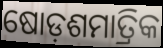
ଷୋଡ଼ଶମାତ୍ରିକ